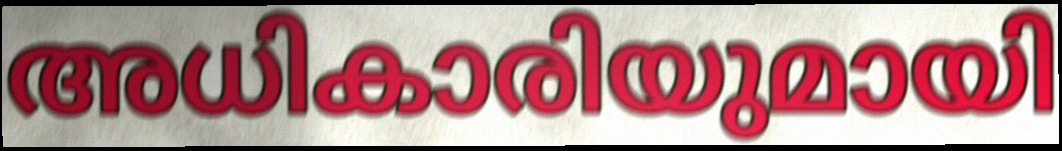
അധികാരിയുമായി